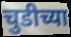
चुडीच्या